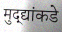
मुद्द्यांकडे